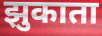
झुकाता